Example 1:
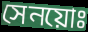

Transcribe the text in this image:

সেনয়োঃ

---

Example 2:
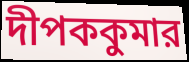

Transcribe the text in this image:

দীপককুমার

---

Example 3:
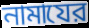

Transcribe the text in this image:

নামাযের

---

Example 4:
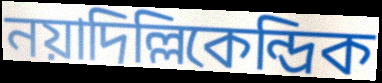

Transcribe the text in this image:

নয়াদিল্লিকেন্দ্রিক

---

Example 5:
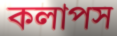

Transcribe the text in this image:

কলাপস